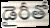
డైరీతో